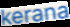
kerana